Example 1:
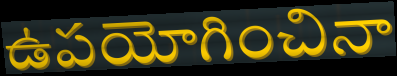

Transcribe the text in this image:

ఉపయోగించినా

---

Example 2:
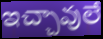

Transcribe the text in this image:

ఇచ్చావులే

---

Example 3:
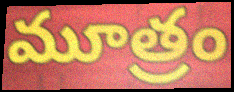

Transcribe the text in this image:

మూత్రం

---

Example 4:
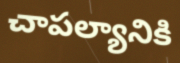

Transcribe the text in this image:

చాపల్యానికి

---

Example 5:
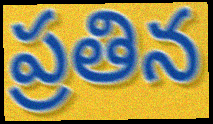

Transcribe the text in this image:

ప్రతిన